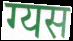
ग्यस